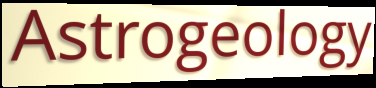
Astrogeology